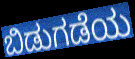
ಬಿಡುಗಡೆಯ